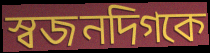
স্বজনদিগকে